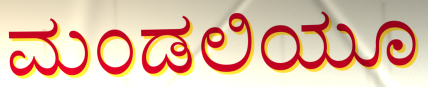
ಮಂಡಲಿಯೂ